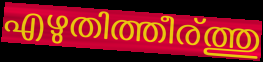
എഴുതിത്തീര്ത്തു